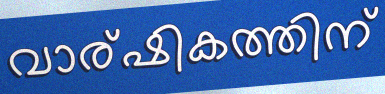
വാര്ഷികത്തിന്